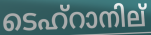
ടെഹ്റാനില്